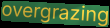
overgrazing